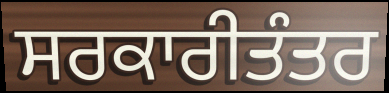
ਸਰਕਾਰੀਤੰਤਰ